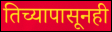
तिच्यापासूनही